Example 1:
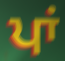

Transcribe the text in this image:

ਪਾਂ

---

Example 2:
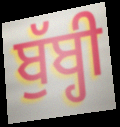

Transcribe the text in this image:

ਬੁੱਬ੍ਹੀ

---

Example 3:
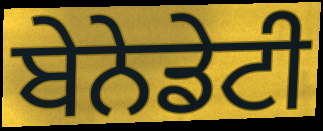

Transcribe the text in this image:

ਬੇਨੇਡੇਟੀ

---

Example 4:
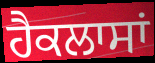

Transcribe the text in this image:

ਹੈਕਲਾਸਾਂ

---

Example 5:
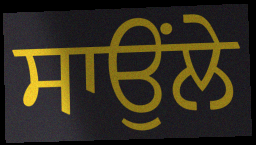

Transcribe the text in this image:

ਸਾਉਂਲੇ